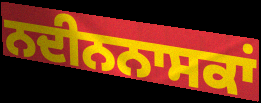
ਨਦੀਨਨਾਸਕਾਂ